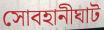
সোবহানীঘাট